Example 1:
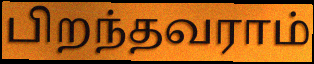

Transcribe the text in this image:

பிறந்தவராம்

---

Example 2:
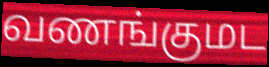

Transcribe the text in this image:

வணங்குமட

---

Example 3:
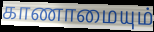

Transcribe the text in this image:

காணாமையும்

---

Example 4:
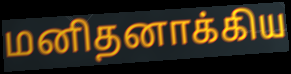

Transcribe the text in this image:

மனிதனாக்கிய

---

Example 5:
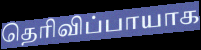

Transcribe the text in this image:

தெரிவிப்பாயாக